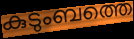
കുടുംബത്തെ